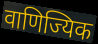
वाणिज्यिक